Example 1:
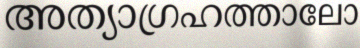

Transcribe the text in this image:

അത്യാഗ്രഹത്താലോ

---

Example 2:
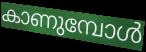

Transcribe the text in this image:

കാണുമ്പോൾ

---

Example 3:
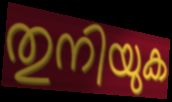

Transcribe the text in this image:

തുനിയുക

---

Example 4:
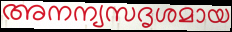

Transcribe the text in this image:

അനന്യസദൃശമായ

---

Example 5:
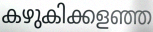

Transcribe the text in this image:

കഴുകിക്കളഞ്ഞ